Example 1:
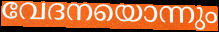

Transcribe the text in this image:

വേദനയൊന്നും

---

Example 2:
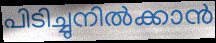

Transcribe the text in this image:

പിടിച്ചുനിൽക്കാൻ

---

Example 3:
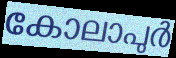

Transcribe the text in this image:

കോലാപുർ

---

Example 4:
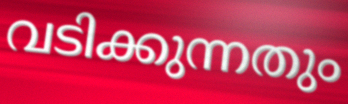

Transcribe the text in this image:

വടിക്കുന്നതും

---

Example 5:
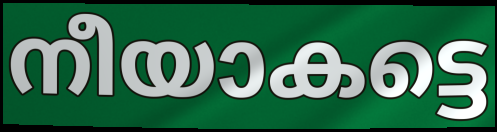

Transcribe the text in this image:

നീയാകട്ടെ